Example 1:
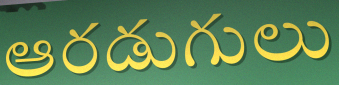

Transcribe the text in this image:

ఆరడుగులు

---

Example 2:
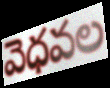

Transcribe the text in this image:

వెధవల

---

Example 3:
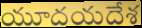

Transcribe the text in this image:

యూదయదేశ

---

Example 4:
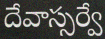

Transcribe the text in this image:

దేవాస్సర్వే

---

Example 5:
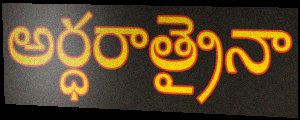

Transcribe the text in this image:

అర్ధరాత్రైనా